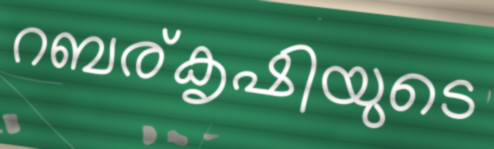
റബര്കൃഷിയുടെ